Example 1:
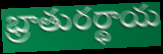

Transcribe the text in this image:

భ్రాతురర్థాయ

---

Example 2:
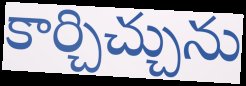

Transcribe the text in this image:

కార్చిచ్చును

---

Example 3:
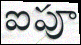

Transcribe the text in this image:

ఐపూ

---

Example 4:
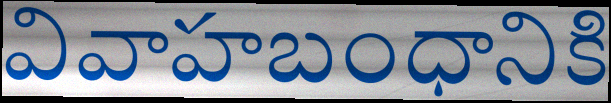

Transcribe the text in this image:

వివాహబంధానికి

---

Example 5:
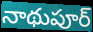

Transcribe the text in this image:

నాథుపూర్